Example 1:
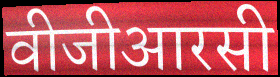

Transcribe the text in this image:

वीजीआरसी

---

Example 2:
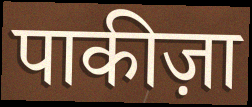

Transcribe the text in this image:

पाकीज़ा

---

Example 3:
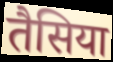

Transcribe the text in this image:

तैसिया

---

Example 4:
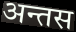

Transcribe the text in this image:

अन्तस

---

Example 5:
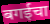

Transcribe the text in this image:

बगईचा